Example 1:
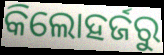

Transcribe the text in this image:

କିଲୋହର୍ଜରୁ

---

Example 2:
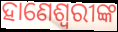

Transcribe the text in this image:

ହାଣେଶ୍ୱରୀଙ୍କ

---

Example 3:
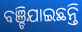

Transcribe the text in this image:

ବଞ୍ଚିଯାଇଛନ୍ତି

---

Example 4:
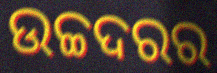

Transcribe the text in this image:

ଉଚ୍ଚଦରର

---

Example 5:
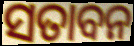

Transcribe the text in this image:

ସତାବନ